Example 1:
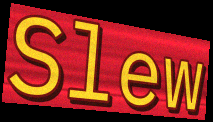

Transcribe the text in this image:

Slew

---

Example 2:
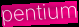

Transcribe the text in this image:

pentium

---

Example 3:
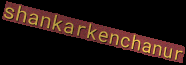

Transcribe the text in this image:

shankarkenchanur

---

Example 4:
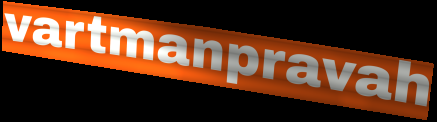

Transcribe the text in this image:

vartmanpravah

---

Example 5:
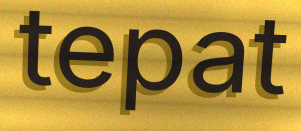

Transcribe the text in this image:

tepat